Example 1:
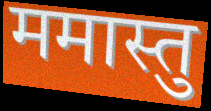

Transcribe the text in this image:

ममास्तु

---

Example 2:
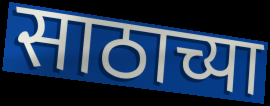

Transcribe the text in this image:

साठाच्या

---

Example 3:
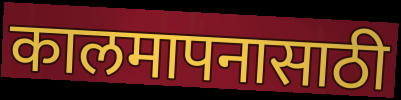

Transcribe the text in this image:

कालमापनासाठी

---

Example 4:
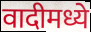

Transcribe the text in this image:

वादीमध्ये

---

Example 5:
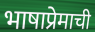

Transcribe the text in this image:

भाषाप्रेमाची